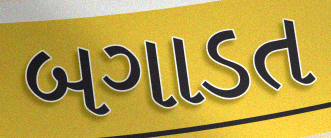
બગાડત